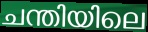
ചന്തിയിലെ